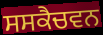
ਸਸਕੈਚਵਨ